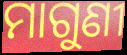
ମାଗୁଣୀ